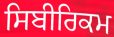
ਸਿਬੀਰਿਕਮ